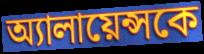
অ্যালায়েন্সকে